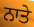
ਨਾਤੇ